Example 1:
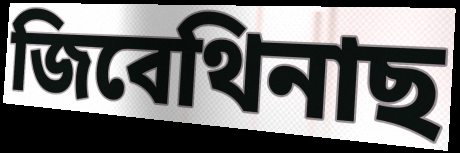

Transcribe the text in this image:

জিবেথিনাছ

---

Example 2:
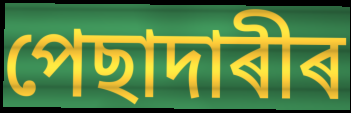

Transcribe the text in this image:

পেছাদাৰীৰ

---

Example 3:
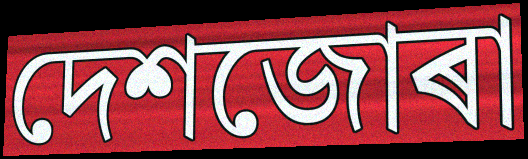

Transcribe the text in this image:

দেশজোৰা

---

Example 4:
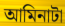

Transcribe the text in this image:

আমিনাটা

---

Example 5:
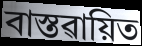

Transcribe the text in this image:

বাস্তৱায়িত